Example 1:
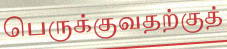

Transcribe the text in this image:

பெருக்குவதற்குத்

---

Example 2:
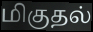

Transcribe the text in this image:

மிகுதல்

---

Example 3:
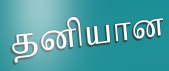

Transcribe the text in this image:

தனியான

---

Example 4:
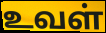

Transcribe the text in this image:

உவள்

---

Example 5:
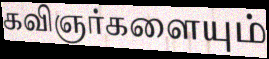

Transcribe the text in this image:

கவிஞர்களையும்